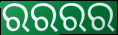
ରରରର